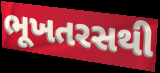
ભૂખતરસથી